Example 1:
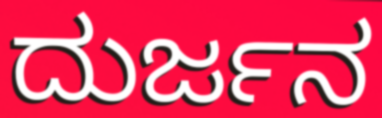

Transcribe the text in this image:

ದುರ್ಜನ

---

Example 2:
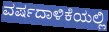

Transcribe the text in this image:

ವರ್ಷದಾಳಿಕೆಯಲ್ಲಿ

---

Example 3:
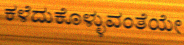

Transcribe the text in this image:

ಕಳೆದುಕೊಳ್ಳುವಂತೆಯೇ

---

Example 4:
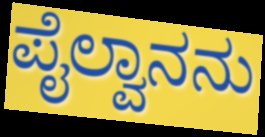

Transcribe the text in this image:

ಪೈಲ್ವಾನನು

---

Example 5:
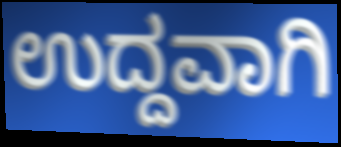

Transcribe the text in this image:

ಉದ್ದವಾಗಿ